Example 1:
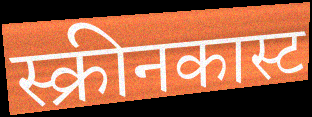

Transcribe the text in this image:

स्क्रीनकास्ट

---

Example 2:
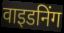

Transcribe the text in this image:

वाइडनिंग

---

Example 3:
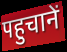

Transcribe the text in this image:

पहुचानें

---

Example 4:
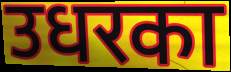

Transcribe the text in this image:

उधरका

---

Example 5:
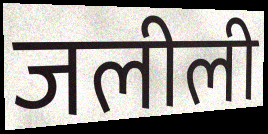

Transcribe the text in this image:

जलीली